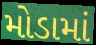
મોડામાં